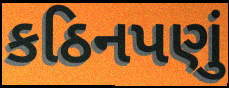
કઠિનપણું